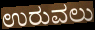
ಉರುವಲು